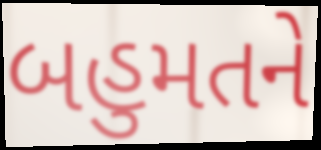
બહુમતને